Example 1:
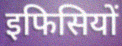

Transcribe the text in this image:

इफिसियों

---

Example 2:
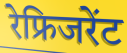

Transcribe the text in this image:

रेफ्रिजरेंट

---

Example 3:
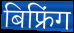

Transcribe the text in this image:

बिफ्रिंग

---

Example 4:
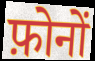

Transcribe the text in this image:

फ़ोनों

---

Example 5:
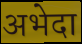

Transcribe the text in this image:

अभेदा